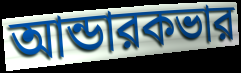
আন্ডারকভার